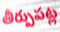
తీర్పుపట్ల